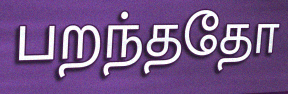
பறந்ததோ